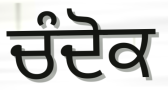
ਚੰਦੋਕ